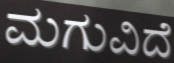
ಮಗುವಿದೆ